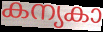
കന്യകാ